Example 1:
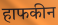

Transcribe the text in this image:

हाफकीन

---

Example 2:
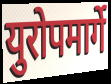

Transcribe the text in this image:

युरोपमार्गे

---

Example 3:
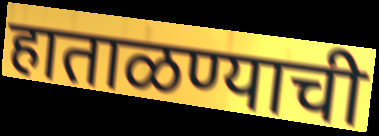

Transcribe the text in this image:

हाताळण्याची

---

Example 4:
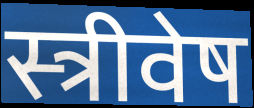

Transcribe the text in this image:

स्त्रीवेष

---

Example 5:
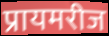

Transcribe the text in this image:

प्रायमरीज